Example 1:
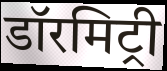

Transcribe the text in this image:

डॉरमिट्री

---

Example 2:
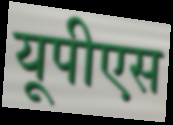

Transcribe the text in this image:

यूपीएस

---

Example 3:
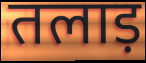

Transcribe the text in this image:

तलाड़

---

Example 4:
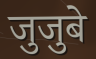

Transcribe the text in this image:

जुजुबे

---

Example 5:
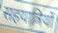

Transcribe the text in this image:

सहयात्रियों